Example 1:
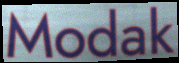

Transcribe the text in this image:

Modak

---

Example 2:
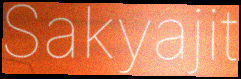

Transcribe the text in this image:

Sakyajit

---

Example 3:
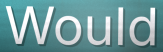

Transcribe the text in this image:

Would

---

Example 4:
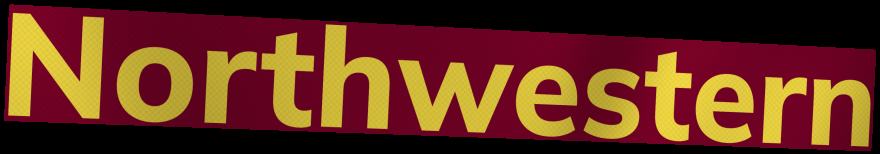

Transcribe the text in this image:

Northwestern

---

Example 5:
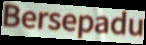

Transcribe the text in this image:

Bersepadu